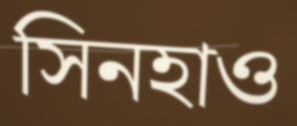
সিনহাও